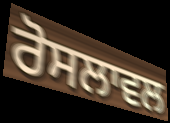
ਰੋਸਲਾਵਲ